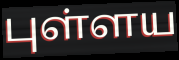
புள்ளய